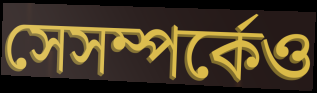
সেসম্পর্কেও